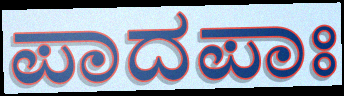
ಪಾದಪಾಃ